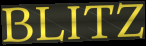
BLITZ